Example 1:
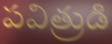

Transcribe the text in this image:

పవిత్రుడి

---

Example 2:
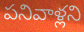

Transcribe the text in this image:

పనివాళ్లని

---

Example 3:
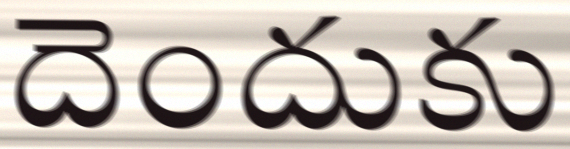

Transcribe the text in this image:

దెందుకు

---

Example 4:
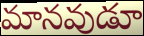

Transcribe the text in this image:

మానవుడూ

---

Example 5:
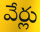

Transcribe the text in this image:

వేర్లు